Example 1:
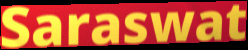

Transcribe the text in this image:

Saraswat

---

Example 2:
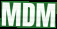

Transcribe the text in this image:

MDM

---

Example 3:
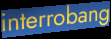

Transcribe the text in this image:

interrobang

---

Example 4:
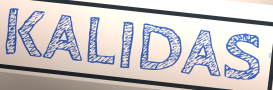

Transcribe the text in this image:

KALIDAS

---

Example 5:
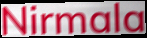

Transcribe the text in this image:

Nirmala